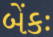
બેંકઃ